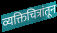
व्यक्तिचित्रांतून